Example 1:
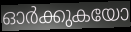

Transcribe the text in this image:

ഓർക്കുകയോ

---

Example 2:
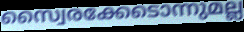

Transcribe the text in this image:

സ്വൈരക്കേടൊന്നുമല്ല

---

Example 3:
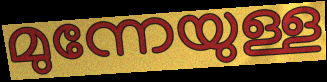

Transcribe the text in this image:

മുന്നേയുള്ള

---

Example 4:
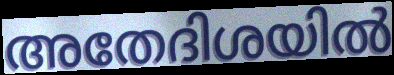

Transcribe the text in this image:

അതേദിശയിൽ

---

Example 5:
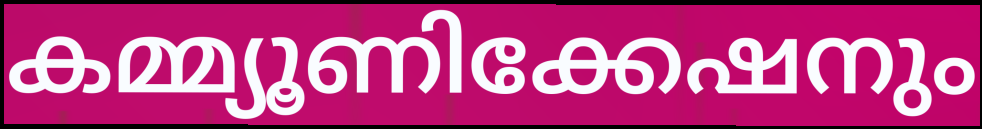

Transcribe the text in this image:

കമ്മ്യൂണിക്കേഷനും